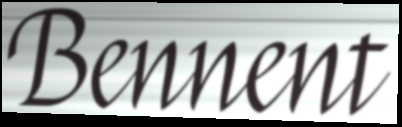
Bennent